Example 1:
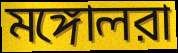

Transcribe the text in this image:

মঙ্গোলরা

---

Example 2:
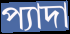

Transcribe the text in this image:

প্যাদা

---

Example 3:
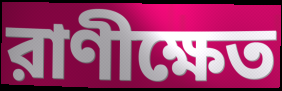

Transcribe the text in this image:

রাণীক্ষেত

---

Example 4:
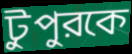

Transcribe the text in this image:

টুপুরকে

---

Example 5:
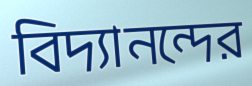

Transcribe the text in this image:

বিদ্যানন্দের